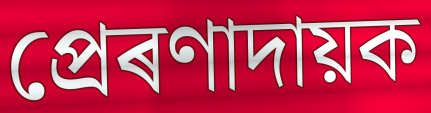
প্ৰেৰণাদায়ক